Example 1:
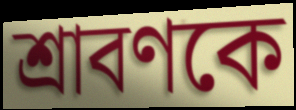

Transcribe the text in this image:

শ্রাবণকে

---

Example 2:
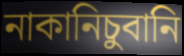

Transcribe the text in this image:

নাকানিচুবানি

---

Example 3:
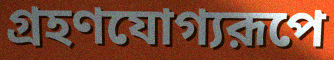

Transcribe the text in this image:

গ্রহণযোগ্যরূপে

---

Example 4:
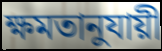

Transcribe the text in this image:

ক্ষমতানুযায়ী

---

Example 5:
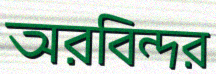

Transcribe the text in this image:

অরবিন্দর